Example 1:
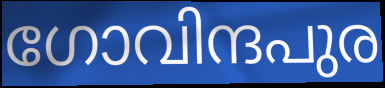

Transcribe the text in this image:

ഗോവിന്ദപുര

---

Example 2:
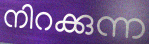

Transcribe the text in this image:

നിറക്കുന്ന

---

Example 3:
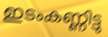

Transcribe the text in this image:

ഇടംകണ്ണിട്ടു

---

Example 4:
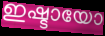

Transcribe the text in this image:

ഇഷ്ടായോ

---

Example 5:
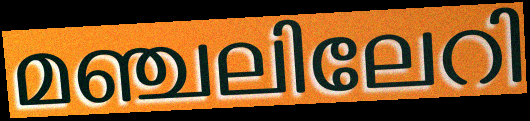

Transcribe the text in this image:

മഞ്ചലിലേറി